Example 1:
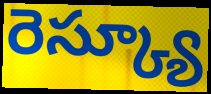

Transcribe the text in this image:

రెస్క్యూ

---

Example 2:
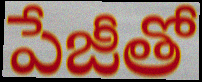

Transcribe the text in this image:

పేజీతో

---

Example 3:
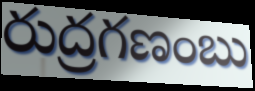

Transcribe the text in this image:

రుద్రగణంబు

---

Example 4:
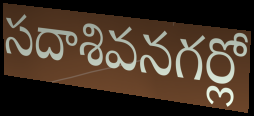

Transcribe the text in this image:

సదాశివనగర్లో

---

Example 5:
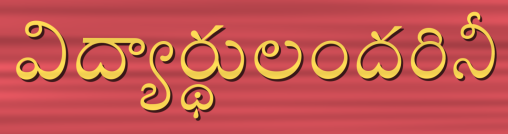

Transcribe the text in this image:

విద్యార్థులందరినీ